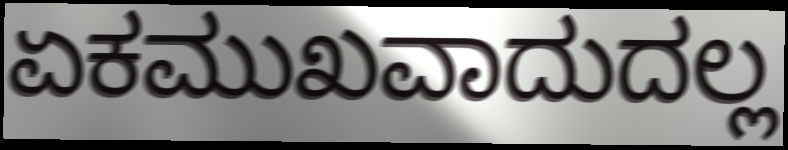
ಏಕಮುಖವಾದುದಲ್ಲ